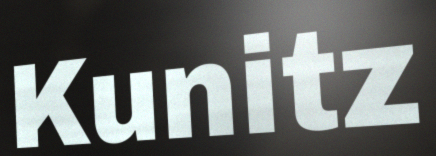
Kunitz